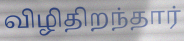
விழிதிறந்தார்